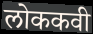
लोककवी